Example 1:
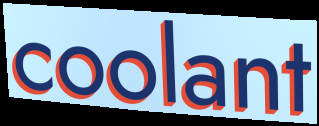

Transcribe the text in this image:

coolant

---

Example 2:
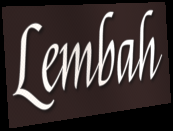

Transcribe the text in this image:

Lembah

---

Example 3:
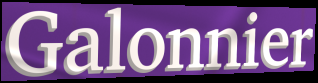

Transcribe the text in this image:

Galonnier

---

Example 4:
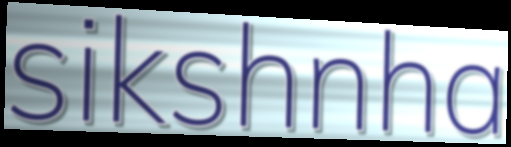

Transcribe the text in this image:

sikshnha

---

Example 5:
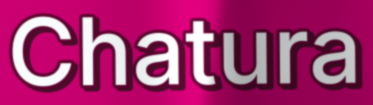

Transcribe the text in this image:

Chatura